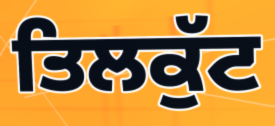
ਤਿਲਕੁੱਟ